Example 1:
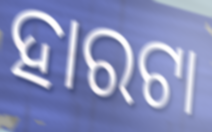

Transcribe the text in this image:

ହାରଟା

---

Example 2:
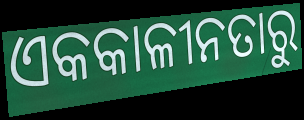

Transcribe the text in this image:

ଏକକାଳୀନତାରୁ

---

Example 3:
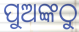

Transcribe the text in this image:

ପୁଅଙ୍କଠୁ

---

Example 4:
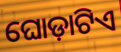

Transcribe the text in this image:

ଘୋଡ଼ାଟିଏ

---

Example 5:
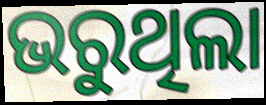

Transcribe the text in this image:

ଭରୁଥିଲା